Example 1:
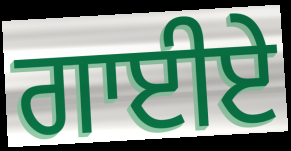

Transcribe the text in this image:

ਗਾਈਏ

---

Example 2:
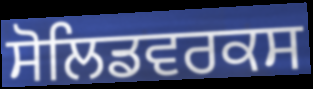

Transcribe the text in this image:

ਸੋਲਿਡਵਰਕਸ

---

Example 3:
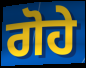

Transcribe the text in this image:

ਗੋਹੇ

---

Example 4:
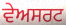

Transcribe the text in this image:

ਵੇਅਸਰਟ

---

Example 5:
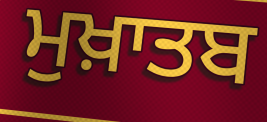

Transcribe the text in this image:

ਮੁਖ਼ਾਤਬ